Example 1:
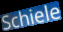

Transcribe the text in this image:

Schiele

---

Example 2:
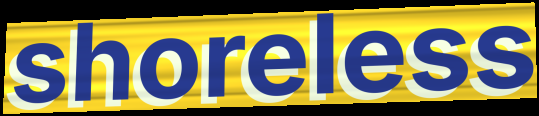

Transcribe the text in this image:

shoreless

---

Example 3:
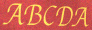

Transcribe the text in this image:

ABCDA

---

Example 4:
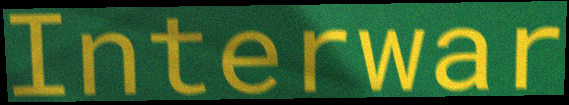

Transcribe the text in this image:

Interwar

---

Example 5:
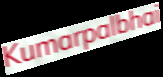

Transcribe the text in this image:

Kumarpalbhai